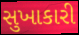
સુખાકારી